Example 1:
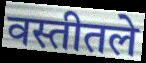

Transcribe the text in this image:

वस्तीतले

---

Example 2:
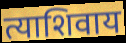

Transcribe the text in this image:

त्याशिवाय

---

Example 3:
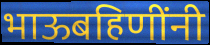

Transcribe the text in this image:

भाऊबहिणींनी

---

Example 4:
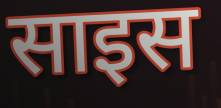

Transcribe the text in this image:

साइस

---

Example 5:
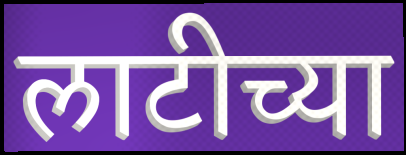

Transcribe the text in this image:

लाटीच्या